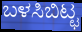
ಬಳಸಿಬಿಟ್ಟ